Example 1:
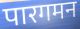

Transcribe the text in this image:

पारगमन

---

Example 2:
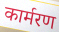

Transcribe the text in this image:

कार्मरण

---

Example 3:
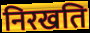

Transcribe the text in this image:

निरखति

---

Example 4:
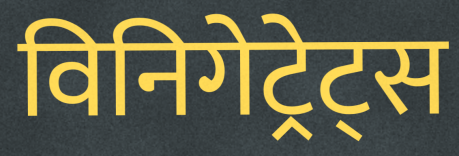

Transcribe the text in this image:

विनिगेट्रेट्स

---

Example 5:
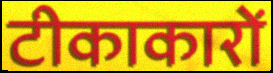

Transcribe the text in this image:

टीकाकारों